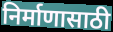
निर्माणासाठी